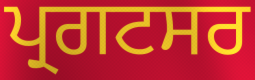
ਪ੍ਰਗਟਸਰ